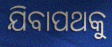
ଯିବାପଥକୁ